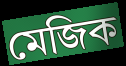
মেজিক